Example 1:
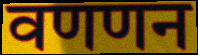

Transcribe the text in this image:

वणणन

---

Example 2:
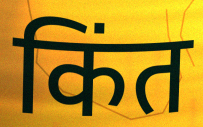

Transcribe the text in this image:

किंत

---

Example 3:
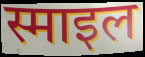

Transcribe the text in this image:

स्माइल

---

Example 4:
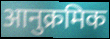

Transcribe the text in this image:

आनुक्रमिक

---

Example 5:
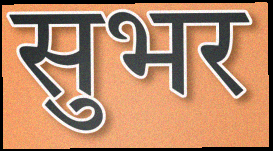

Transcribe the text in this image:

सुभर